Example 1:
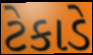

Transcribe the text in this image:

ટેકાડે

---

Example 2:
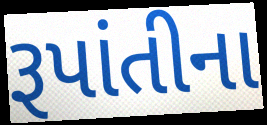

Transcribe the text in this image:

રૂપાંતીના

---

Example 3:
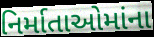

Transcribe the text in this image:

નિર્માતાઓમાંના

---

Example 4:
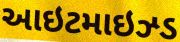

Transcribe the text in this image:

આઇટમાઇઝ્ડ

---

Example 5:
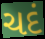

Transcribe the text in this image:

ચદં